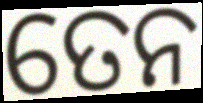
ତେନ